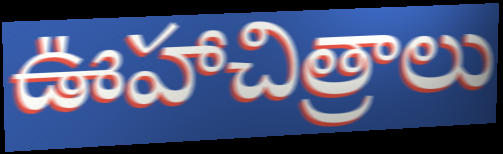
ఊహాచిత్రాలు